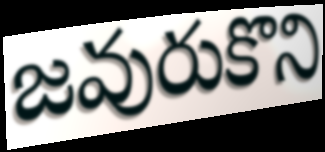
జవురుకొని